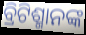
ବ୍ରିଟିଶ୍ମାନଙ୍କ